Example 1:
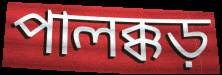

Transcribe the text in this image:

পালক্কড়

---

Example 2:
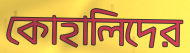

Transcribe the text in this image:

কোহালিদের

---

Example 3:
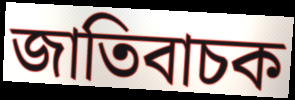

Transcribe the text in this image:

জাতিবাচক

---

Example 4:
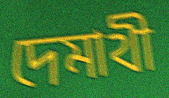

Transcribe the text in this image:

দেমাথী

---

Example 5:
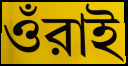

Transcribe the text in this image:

ওঁরাই